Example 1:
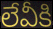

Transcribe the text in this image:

లేవీకి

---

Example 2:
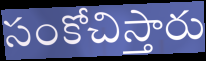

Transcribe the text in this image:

సంకోచిస్తారు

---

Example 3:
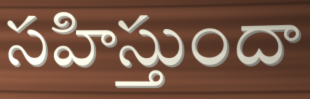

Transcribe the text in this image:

సహిస్తుందా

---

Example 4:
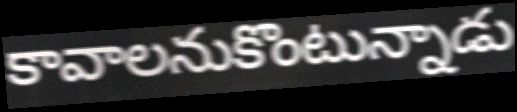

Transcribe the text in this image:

కావాలనుకొంటున్నాడు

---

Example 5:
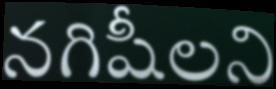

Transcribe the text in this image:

నగిషీలని